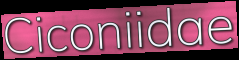
Ciconiidae